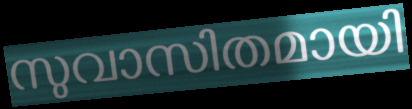
സുവാസിതമായി